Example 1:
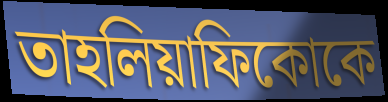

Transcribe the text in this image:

তাহলিয়াফিকোকে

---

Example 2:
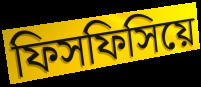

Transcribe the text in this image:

ফিসফিসিয়ে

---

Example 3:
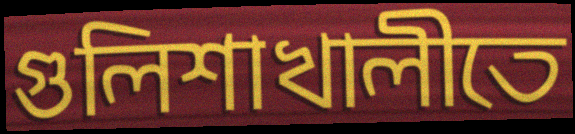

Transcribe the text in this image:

গুলিশাখালীতে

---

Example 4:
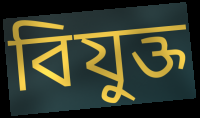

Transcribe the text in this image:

বিযুক্ত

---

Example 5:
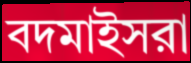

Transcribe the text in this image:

বদমাইসরা